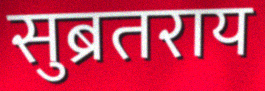
सुब्रतराय